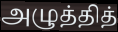
அழுத்தித்